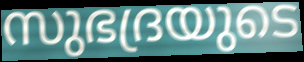
സുഭദ്രയുടെ